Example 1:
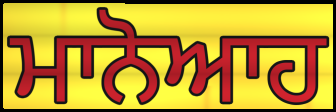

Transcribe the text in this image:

ਮਾਨੋਆਹ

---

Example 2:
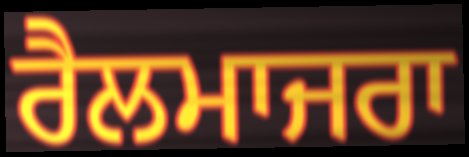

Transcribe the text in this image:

ਰੈਲਮਾਜਰਾ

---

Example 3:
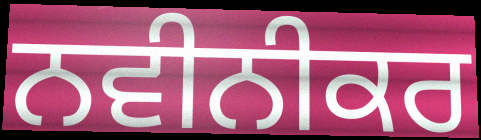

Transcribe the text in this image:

ਨਵੀਨੀਕਰ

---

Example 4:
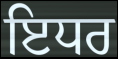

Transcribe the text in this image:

ਇਧਰ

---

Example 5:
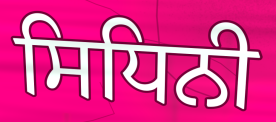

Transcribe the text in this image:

ਸਿਧਿਨੀ